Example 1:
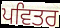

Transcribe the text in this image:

ਪਵਿਤਰ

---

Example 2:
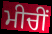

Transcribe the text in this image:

ਮੀਚੀਂ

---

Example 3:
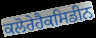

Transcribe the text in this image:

ਕਲੋਰੇਹੈਕਸਿਡੀਨ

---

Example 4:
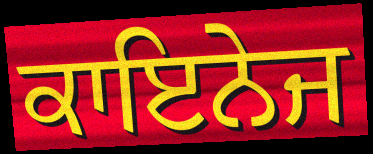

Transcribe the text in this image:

ਕਾਇਨੇਜ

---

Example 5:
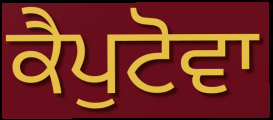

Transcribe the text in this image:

ਕੈਪੁਟੋਵਾ